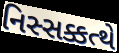
નિસ્સક્કત્થે